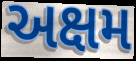
અક્ષમ